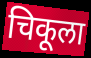
चिकूला